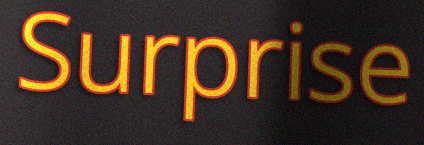
Surprise